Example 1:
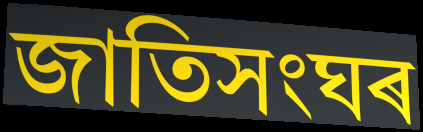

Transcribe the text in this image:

জাতিসংঘৰ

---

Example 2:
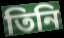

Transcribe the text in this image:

তিনি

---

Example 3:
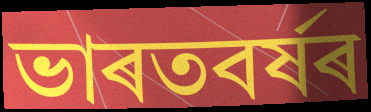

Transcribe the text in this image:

ভাৰতবৰ্ষৰ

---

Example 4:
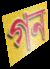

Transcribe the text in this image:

গন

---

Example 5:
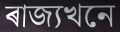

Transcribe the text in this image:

ৰাজ্যখনে